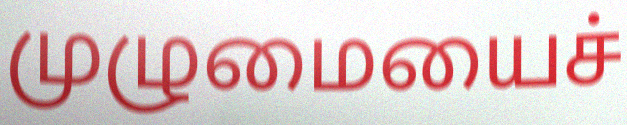
முழுமையைச்